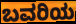
ಬವರಿಯ